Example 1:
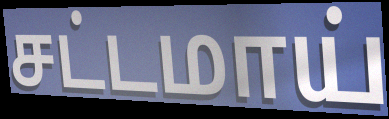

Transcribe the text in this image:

சட்டமாய்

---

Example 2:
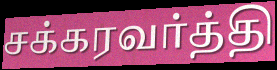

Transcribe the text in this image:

சக்கரவர்த்தி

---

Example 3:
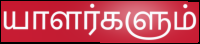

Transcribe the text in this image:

யாளர்களும்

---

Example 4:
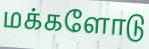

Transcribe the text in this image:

மக்களோடு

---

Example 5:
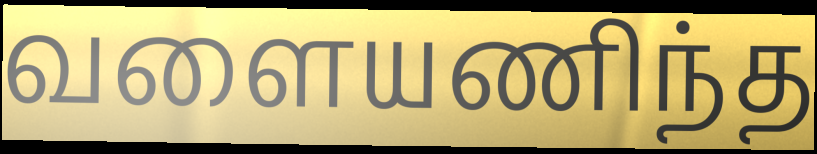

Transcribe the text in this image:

வளையணிந்த